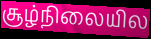
சூழ்நிலையில